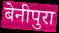
बेनीपुरा